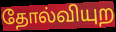
தோல்வியுற